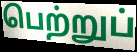
பெற்றுப்